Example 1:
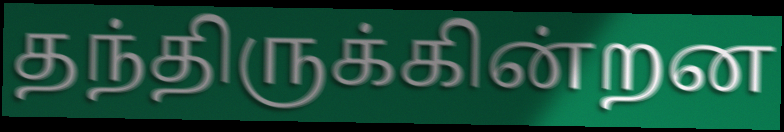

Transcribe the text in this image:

தந்திருக்கின்றன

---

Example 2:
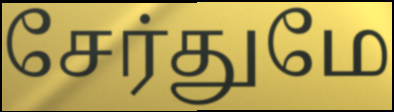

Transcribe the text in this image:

சேர்துமே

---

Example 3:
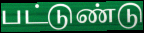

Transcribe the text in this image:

பட்டுண்டு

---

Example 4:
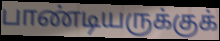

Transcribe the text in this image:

பாண்டியருக்குக்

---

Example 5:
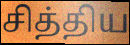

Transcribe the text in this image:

சித்திய